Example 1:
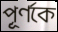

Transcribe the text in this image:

পূর্ণকে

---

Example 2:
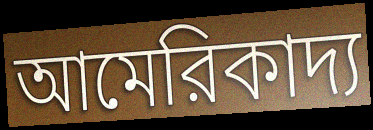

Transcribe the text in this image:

আমেরিকাদ্য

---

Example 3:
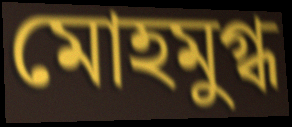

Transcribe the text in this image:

মোহমুগ্ধ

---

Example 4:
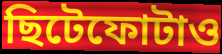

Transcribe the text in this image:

ছিটেফোটাও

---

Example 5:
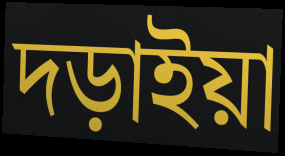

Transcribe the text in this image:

দড়াইয়া